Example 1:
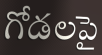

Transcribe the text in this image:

గోడలపై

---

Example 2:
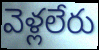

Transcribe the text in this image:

వెళ్లలేరు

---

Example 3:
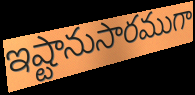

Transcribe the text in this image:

ఇష్టానుసారముగా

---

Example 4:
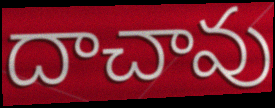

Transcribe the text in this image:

దాచావు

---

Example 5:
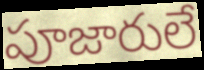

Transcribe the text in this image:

పూజారులే